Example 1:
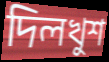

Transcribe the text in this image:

দিলখুশ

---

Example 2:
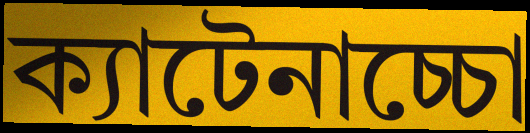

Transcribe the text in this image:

ক্যাটেনাচ্চো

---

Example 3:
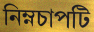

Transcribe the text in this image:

নিম্নচাপটি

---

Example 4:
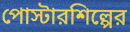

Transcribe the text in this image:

পোস্টারশিল্পের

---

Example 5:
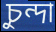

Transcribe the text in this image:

চুন্দা